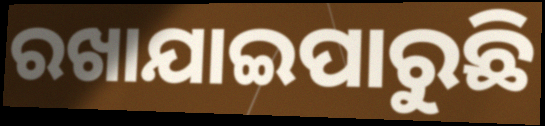
ରଖାଯାଇପାରୁଛି